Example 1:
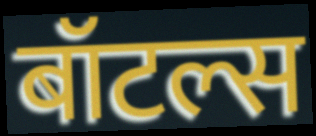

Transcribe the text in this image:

बॉटल्स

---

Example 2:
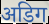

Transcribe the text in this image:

अडिग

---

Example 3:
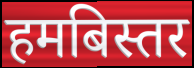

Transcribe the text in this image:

हमबिस्तर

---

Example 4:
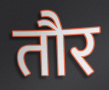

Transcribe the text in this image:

तौर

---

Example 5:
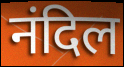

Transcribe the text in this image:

नंदिल